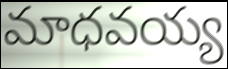
మాధవయ్య